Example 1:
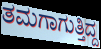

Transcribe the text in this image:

ತಮಗಾಗುತ್ತಿದ್ದ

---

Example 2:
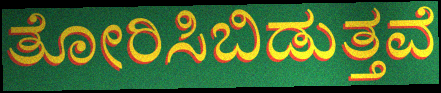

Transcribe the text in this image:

ತೋರಿಸಿಬಿಡುತ್ತವೆ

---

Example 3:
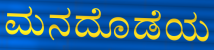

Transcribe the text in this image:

ಮನದೊಡೆಯ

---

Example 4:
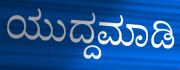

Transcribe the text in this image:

ಯುದ್ದಮಾಡಿ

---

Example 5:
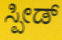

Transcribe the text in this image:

ಸ್ಪೀಡ್